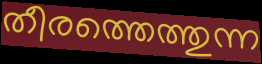
തീരത്തെത്തുന്ന